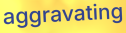
aggravating